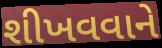
શીખવવાને